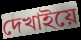
দেখাইয়ে